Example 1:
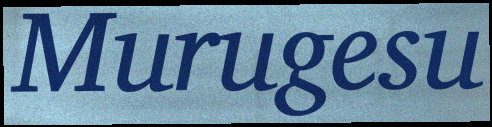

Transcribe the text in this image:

Murugesu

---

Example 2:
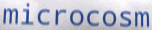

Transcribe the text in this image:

microcosm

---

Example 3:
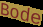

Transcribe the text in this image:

Bode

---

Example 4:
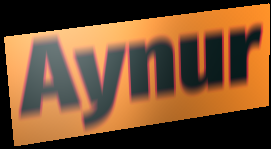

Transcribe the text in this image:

Aynur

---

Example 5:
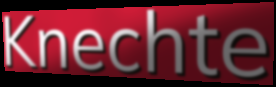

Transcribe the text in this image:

Knechte